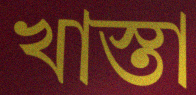
খাস্তা